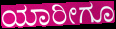
ಯಾರೀಗೂ